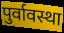
पुर्वावस्था